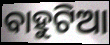
ବାହୁଟିଆ